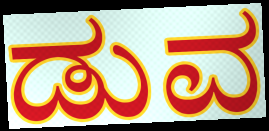
ಡುವ